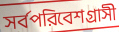
সর্বপরিবেশগ্রাসী